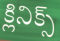
క్లినిక్స్